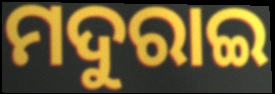
ମଦୁରାଇ